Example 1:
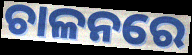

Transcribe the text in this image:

ଚାଳନରେ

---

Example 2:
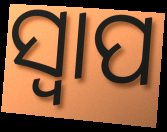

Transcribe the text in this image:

ସ୍ବାପ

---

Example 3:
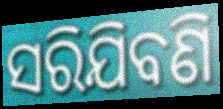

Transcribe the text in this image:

ସରିଯିବଣି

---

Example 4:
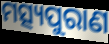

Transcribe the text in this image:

ମତ୍ସ୍ୟପୁରାଣ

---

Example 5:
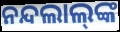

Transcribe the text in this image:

ନନ୍ଦଲାଲ୍‌ଙ୍କ